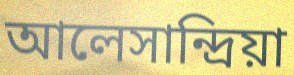
আলেসান্দ্রিয়া